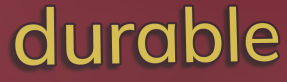
durable